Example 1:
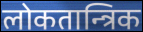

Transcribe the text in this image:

लोकतान्त्रिक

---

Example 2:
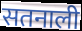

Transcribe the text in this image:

सतनाली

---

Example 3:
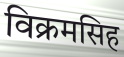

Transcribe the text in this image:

विक्रमसिह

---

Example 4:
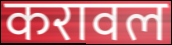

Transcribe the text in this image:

करावल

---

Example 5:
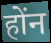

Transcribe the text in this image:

होंन